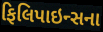
ફિલિપાઇન્સના